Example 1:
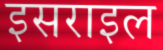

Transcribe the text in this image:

इसराइल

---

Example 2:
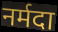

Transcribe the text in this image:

नर्मदा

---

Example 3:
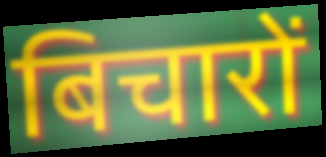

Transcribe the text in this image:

बिचारों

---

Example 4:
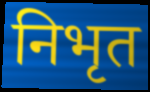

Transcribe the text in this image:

निभृत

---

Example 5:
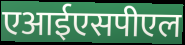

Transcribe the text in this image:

एआईएसपीएल